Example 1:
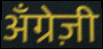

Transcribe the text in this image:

अँग्रेज़ी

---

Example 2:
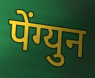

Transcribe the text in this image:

पेंग्युन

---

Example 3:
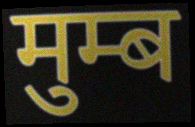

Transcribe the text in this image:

मुम्ब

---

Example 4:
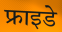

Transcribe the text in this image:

फ्राइडे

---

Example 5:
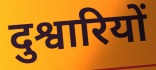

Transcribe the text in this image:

दुश्वारियों